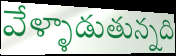
వేళ్ళాడుతున్నది